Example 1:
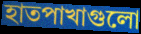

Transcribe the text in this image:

হাতপাখাগুলো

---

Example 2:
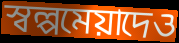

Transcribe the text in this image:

স্বল্পমেয়াদেও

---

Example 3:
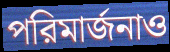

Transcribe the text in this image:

পরিমার্জনাও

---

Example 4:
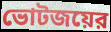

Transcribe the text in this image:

ভোটজয়ের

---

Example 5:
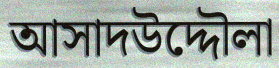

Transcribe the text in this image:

আসাদউদ্দৌলা